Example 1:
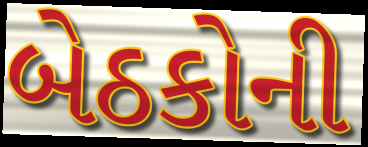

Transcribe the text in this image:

બેઠકોની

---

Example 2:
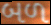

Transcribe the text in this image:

બળ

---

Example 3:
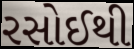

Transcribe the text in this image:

રસોઈથી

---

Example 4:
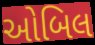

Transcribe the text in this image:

ઓબિલ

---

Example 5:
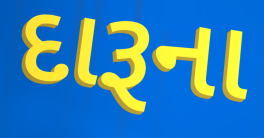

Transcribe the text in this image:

દારૂના